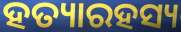
ହତ୍ୟାରହସ୍ୟ